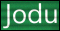
Jodu